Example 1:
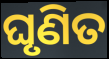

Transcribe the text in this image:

ଘୃଣିତ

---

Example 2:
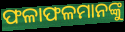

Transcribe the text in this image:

ଫଳାଫଳମାନଙ୍କୁ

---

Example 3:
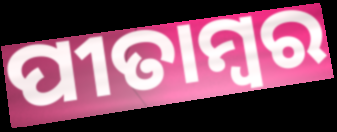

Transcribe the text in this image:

ପୀତାମ୍ୱର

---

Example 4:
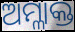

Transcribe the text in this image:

ଅମ୍ଳାକ୍ତ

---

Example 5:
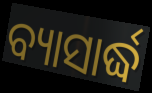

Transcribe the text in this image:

ବ୍ୟାସାର୍ଦ୍ଧ